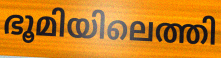
ഭൂമിയിലെത്തി